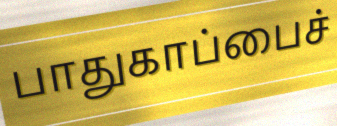
பாதுகாப்பைச்